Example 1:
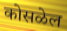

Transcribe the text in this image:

कोसळेल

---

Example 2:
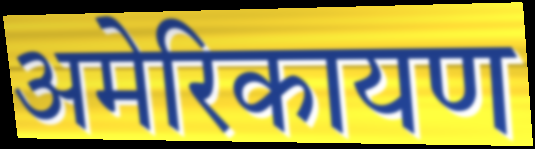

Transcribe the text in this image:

अमेरिकायण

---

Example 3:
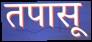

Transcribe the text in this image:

तपासू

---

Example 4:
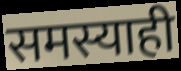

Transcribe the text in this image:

समस्याही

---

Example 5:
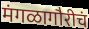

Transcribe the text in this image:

मंगळागौरीचं